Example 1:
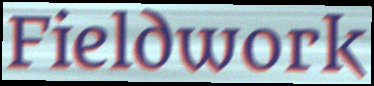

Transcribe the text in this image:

Fieldwork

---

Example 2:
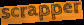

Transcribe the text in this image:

scrapper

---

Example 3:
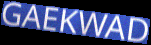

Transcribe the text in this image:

GAEKWAD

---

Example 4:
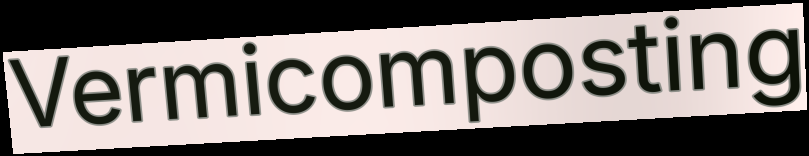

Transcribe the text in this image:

Vermicomposting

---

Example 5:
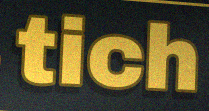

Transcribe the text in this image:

tich